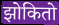
झोकितो